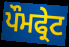
ਪੌਮਫ੍ਰੇਟ